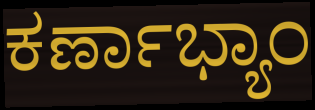
ಕರ್ಣಾಭ್ಯಾಂ